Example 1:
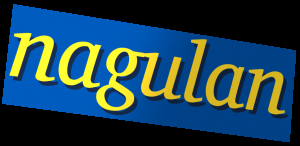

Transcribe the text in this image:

nagulan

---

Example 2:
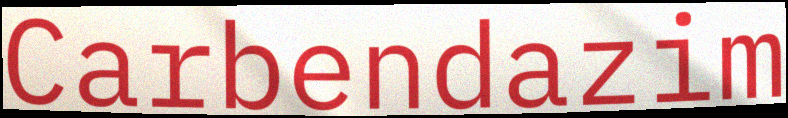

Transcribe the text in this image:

Carbendazim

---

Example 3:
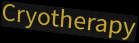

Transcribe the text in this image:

Cryotherapy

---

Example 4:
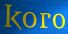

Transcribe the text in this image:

koro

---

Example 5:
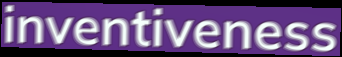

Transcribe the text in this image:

inventiveness